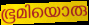
ഭൂമിയൊരു